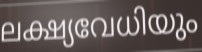
ലക്ഷ്യവേധിയും